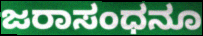
ಜರಾಸಂಧನೂ